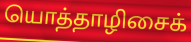
யொத்தாழிசைக்